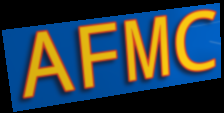
AFMC